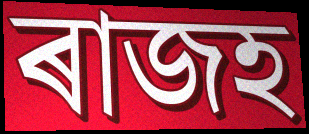
ৰাজহ